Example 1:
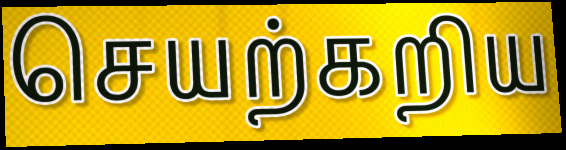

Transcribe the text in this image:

செயற்கறிய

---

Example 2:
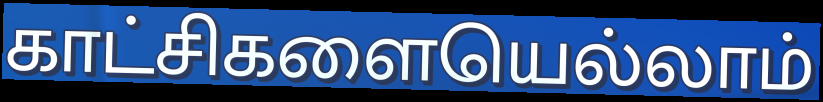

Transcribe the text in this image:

காட்சிகளையெல்லாம்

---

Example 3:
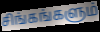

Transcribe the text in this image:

சிங்கங்களும்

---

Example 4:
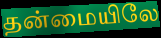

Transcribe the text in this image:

தன்மையிலே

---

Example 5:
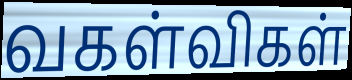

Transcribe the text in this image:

வகள்விகள்